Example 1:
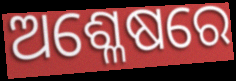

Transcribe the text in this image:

ଅଶ୍ଳେଷରେ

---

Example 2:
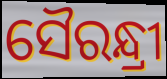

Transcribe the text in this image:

ସୈରନ୍ଧ୍ରୀ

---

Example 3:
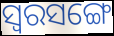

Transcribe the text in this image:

ସ୍ୱରସଙ୍ଗେ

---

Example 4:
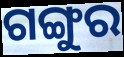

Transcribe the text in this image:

ଗଙ୍ଗୁର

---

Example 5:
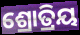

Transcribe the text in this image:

ଶ୍ରୋତ୍ରିୟ